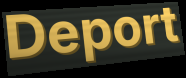
Deport